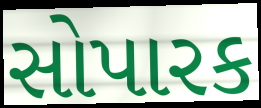
સોપારક